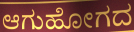
ಆಗುಹೋಗದ